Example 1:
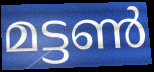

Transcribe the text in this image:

മട്ടൺ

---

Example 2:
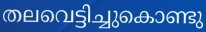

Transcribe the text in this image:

തലവെട്ടിച്ചുകൊണ്ടു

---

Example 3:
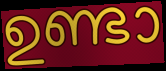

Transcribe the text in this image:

ഉണ്ടാ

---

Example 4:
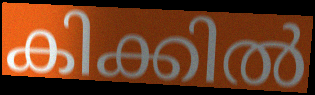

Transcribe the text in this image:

കിക്കിൽ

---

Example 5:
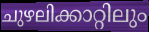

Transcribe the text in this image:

ചുഴലിക്കാറ്റിലും